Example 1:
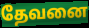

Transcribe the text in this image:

தேவனை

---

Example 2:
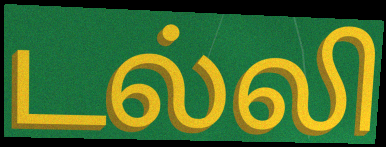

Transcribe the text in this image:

டல்லி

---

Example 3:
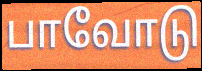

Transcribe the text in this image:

பாவோடு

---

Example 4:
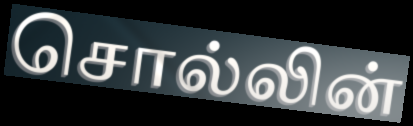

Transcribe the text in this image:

சொல்லின்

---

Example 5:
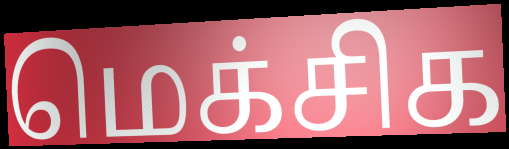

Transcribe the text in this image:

மெக்சிக